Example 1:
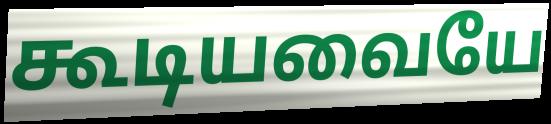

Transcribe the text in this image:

கூடியவையே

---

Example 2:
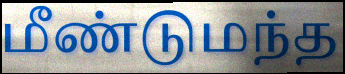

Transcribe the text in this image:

மீண்டுமந்த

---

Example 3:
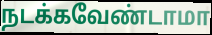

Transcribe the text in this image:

நடக்கவேண்டாமா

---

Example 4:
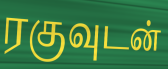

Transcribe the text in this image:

ரகுவுடன்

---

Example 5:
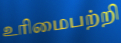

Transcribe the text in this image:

உரிமைபற்றி